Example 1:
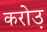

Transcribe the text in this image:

करोउ़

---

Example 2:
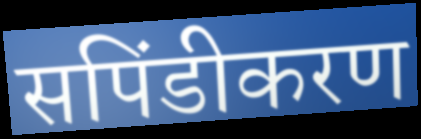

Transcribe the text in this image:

सपिंडीकरण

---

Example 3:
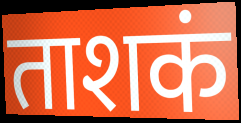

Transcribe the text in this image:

ताशकं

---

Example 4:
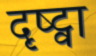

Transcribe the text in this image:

दृष्ट्वा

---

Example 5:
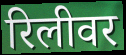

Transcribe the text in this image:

रिलीवर